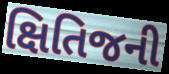
ક્ષિતિજની